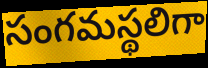
సంగమస్థలిగా